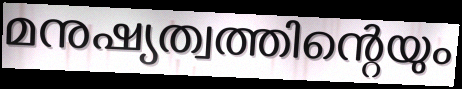
മനുഷ്യത്വത്തിന്റെയും